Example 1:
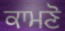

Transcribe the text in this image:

ਕਾਮਣੋ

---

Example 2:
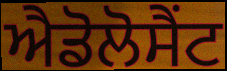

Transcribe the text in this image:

ਐਡੋਲੋਸੈਂਟ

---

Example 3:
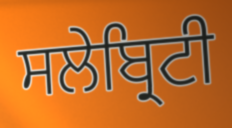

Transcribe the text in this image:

ਸਲੇਬ੍ਰਿਟੀ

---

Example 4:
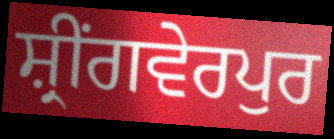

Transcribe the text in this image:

ਸ਼੍ਰੀਂਗਵੇਰਪੁਰ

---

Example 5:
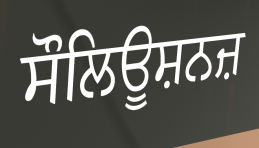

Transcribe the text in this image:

ਸੌਲਿਊਸ਼ਨਜ਼